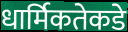
धार्मिकतेकडे